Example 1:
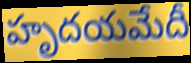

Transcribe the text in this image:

హృదయమేదీ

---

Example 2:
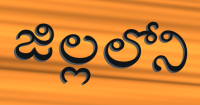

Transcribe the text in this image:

జిల్లలోని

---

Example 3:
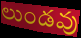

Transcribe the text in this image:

లుండవు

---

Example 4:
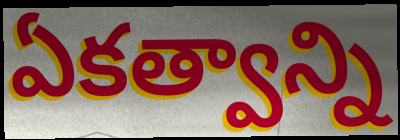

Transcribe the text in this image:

ఏకత్వాన్ని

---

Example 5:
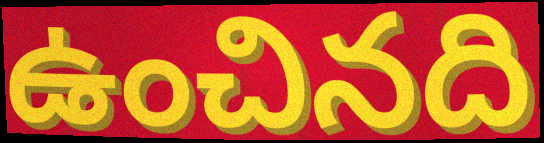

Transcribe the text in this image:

ఉంచినది